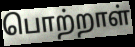
பொற்றாள்